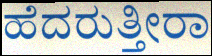
ಹೆದರುತ್ತೀರಾ